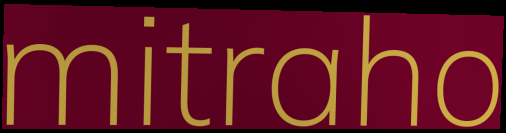
mitraho